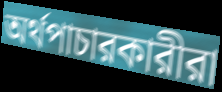
অর্থপাচারকারীরা